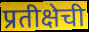
प्रतीक्षेची